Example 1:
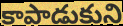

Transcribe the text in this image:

కాపాడుకుని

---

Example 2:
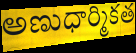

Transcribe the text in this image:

అణుధార్మికత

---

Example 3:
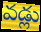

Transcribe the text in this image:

వడ్లు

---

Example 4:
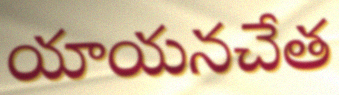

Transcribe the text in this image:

యాయనచేత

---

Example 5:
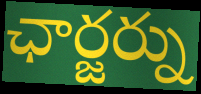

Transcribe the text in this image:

ఛార్జర్ను